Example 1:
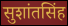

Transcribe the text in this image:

सुशांतसिंह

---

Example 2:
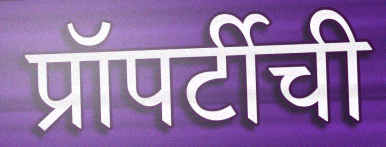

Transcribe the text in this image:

प्रॉपर्टीची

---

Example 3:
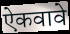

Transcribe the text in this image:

ऐकवावे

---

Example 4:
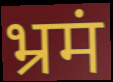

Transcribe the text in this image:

भ्रमं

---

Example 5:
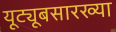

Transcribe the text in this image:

यूट्यूबसारख्या